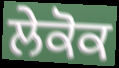
ਲੇਕੋਕ